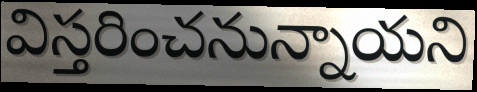
విస్తరించనున్నాయని